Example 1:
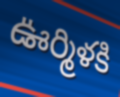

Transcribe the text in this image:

ఊర్మిళకి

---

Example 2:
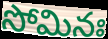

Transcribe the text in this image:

సోమినః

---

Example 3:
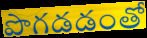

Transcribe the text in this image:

పొగడడంతో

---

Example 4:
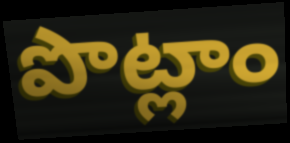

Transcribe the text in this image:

పొట్లాం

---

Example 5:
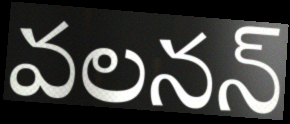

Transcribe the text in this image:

వలనన్